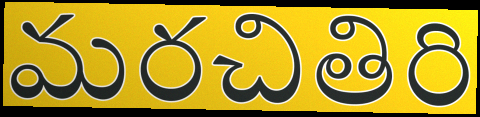
మరచితిరి